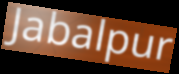
Jabalpur